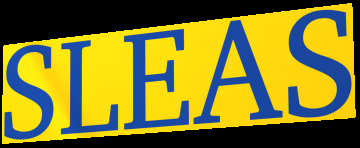
SLEAS